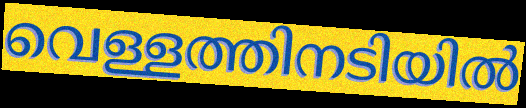
വെള്ളത്തിനടിയിൽ